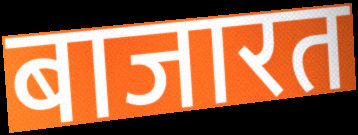
बाजारत